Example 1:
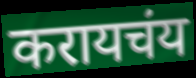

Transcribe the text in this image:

करायचंय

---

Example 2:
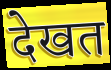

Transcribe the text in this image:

देखत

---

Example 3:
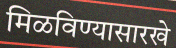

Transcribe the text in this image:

मिळविण्यासारखे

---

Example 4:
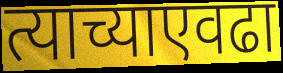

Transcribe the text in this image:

त्याच्याएवढा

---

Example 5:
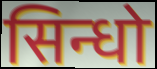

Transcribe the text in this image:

सिन्धो